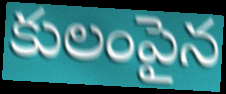
కులంపైన